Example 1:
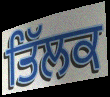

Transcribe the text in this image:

ਤਿੱਲਕ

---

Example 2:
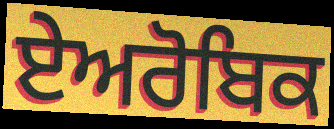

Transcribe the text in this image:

ਏਅਰੋਬਿਕ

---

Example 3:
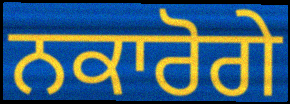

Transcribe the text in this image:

ਨਕਾਰੋਗੇ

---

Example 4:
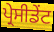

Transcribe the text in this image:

ਪ੍ਰੇਸੀਡੇਂਟ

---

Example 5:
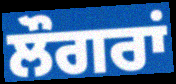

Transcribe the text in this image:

ਲੌਗਰਾਂ